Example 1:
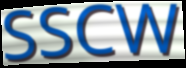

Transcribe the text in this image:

SSCW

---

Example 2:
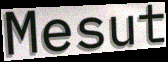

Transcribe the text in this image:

Mesut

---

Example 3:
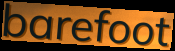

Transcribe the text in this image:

barefoot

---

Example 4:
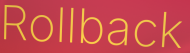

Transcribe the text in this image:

Rollback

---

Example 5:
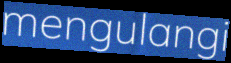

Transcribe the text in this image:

mengulangi